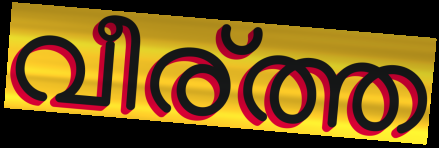
വീര്ത്ത